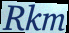
Rkm